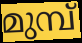
മുമ്പ്